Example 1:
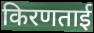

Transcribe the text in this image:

किरणताई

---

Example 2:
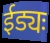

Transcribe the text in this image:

ईड्यः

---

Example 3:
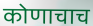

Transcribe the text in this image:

कोणाचाच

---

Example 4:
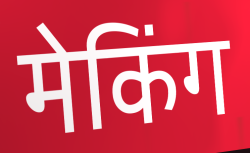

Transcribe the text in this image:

मेकिंग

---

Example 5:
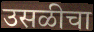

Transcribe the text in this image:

उसळीचा